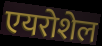
एयरोशेल